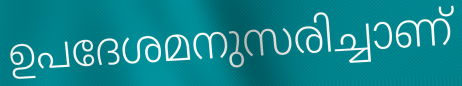
ഉപദേശമനുസരിച്ചാണ്